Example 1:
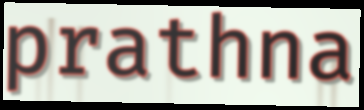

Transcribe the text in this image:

prathna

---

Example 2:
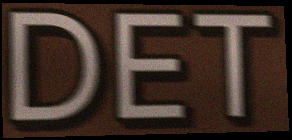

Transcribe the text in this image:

DET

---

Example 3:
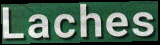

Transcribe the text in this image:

Laches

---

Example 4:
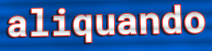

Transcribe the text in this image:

aliquando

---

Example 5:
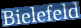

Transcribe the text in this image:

Bielefeld